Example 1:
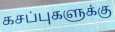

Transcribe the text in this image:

கசப்புகளுக்கு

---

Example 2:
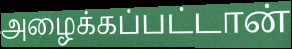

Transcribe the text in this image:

அழைக்கப்பட்டான்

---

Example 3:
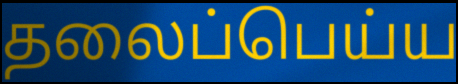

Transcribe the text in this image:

தலைப்பெய்ய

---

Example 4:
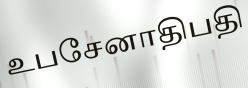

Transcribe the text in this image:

உபசேனாதிபதி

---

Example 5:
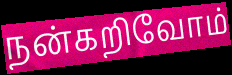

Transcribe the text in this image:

நன்கறிவோம்